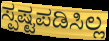
ಸ್ಪಷ್ಟಪಡಿಸಿಲ್ಲ